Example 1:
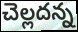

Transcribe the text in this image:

చెల్లదన్న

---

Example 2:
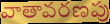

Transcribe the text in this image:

వాతావరణపు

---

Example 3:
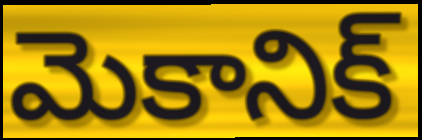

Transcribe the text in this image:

మెకానిక్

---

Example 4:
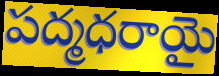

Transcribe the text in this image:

పద్మధరాయై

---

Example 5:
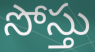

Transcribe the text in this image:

సోస్తు